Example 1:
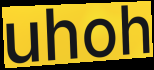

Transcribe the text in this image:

uhoh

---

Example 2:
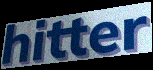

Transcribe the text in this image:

hitter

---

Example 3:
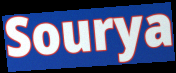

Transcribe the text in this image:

Sourya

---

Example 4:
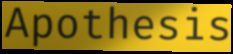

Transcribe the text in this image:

Apothesis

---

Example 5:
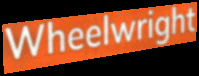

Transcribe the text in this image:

Wheelwright